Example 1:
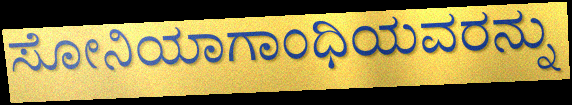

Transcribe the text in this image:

ಸೋನಿಯಾಗಾಂಧಿಯವರನ್ನು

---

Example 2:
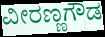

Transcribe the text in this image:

ವೀರಣ್ಣಗೌಡ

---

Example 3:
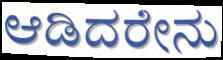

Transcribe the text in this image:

ಆಡಿದರೇನು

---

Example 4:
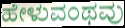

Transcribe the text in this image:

ಹೇಳುವಂಥವು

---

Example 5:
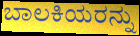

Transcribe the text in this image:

ಬಾಲಕಿಯರನ್ನು